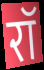
रॉ